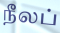
நீலப்